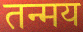
तन्‍मय